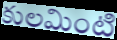
కులమింటి